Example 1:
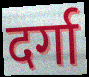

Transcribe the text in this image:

दर्गा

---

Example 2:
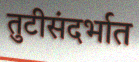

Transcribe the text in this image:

तुटीसंदर्भात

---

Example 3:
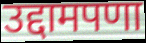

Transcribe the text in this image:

उद्दामपणा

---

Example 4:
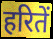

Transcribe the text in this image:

हरितें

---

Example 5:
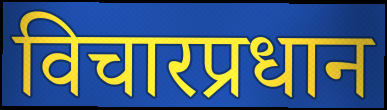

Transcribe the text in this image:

विचारप्रधान